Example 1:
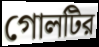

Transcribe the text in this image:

গোলটির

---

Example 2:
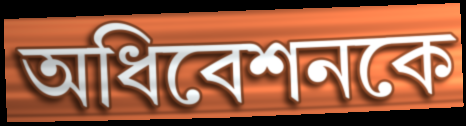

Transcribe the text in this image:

অধিবেশনকে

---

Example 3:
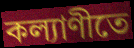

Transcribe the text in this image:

কল্যাণীতে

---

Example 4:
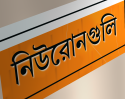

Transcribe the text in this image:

নিউরোনগুলি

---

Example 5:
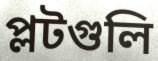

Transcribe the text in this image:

প্লটগুলি